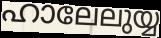
ഹാലേലുയ്യ